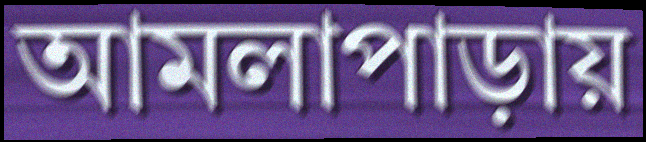
আমলাপাড়ায়